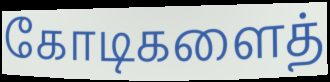
கோடிகளைத்